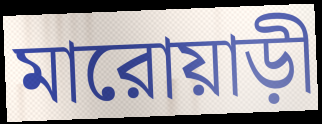
মারোয়াড়ী